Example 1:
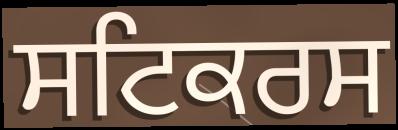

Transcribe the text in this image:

ਸਟਿਕਰਸ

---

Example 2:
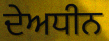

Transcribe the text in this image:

ਦੇਅਧੀਨ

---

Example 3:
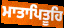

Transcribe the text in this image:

ਮਾਤਾਪਿਤੂਹਿ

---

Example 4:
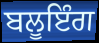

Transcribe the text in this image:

ਬਲੂਇੰਗ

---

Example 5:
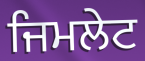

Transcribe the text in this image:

ਜਿਮਲੇਟ